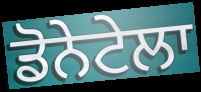
ਡੋਨੇਟੇਲਾ